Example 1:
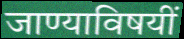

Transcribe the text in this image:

जाण्याविषयीं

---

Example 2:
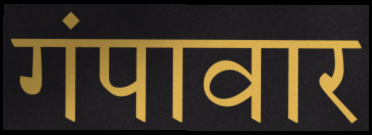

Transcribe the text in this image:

गंपावार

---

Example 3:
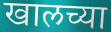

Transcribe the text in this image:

खालच्या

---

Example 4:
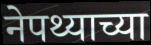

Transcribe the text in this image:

नेपथ्याच्या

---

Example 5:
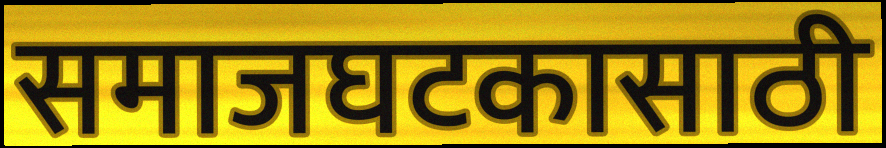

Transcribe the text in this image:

समाजघटकासाठी